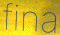
fina